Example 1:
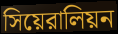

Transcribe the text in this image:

সিয়েরালিয়ন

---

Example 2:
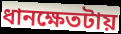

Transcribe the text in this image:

ধানক্ষেতটায়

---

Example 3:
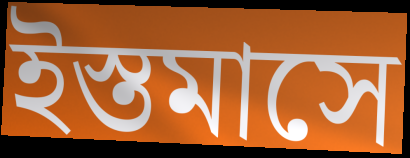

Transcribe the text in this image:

ইস্তমাসে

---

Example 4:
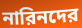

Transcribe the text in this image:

নারিনদের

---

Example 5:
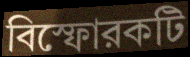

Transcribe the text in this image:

বিস্ফোরকটি